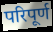
परिपूर्ण